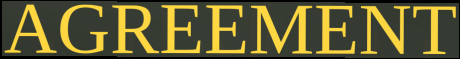
AGREEMENT